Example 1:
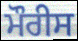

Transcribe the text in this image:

ਮੌਰੀਸ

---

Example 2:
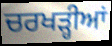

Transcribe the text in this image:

ਚਰਖੜ੍ਹੀਆਂ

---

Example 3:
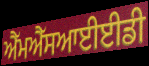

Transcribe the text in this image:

ਐੱਮਐੱਸਆਈਈਡੀ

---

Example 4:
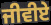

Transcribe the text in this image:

ਜੀਵੀਏ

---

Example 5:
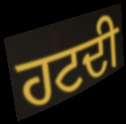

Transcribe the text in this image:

ਹਟਦੀ